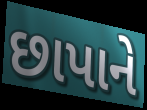
છાપાને